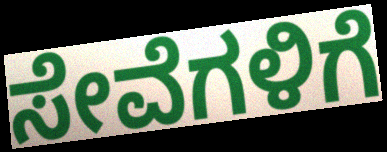
ಸೇವೆಗಳಿಗೆ